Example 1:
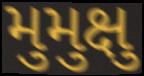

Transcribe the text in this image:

મુમુક્ષુ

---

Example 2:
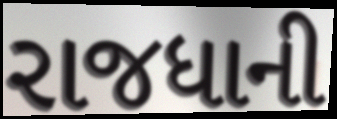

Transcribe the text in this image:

રાજધાની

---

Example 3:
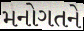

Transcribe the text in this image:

મનોગતને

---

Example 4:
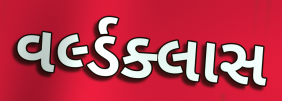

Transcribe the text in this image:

વર્લ્ડક્લાસ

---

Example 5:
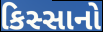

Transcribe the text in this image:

કિસ્સાનો